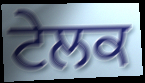
ਟੇਲਕ